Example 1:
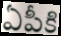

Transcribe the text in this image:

ఏపీకి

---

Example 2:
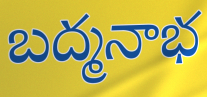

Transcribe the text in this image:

బద్మనాభ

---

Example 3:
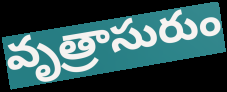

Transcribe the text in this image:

వృత్రాసురుం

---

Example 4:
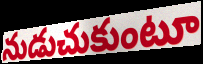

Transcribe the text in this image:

నుడుచుకుంటూ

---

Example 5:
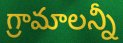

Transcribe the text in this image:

గ్రామాలన్నీ